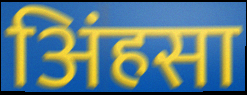
अिंहसा